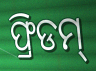
ଫ୍ରିଡମ୍